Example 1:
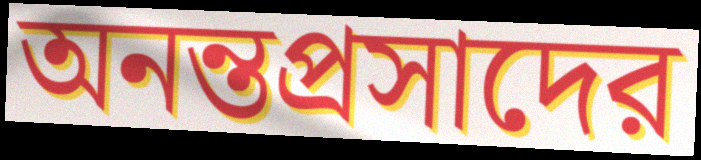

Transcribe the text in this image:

অনন্তপ্রসাদের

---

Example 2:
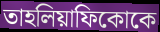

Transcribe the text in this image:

তাহলিয়াফিকোকে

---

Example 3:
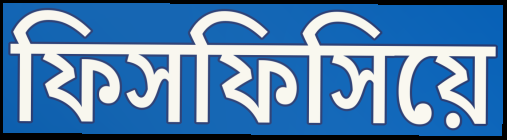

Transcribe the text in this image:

ফিসফিসিয়ে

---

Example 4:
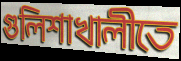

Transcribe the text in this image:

গুলিশাখালীতে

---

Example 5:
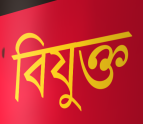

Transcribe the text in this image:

বিযুক্ত